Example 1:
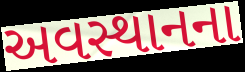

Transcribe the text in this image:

અવસ્થાનના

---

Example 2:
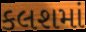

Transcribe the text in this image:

કલશમાં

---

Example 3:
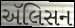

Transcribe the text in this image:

ઍલિસન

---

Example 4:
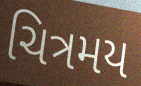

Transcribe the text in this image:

ચિત્રમય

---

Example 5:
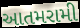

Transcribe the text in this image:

આતમરામી